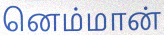
னெம்மான்